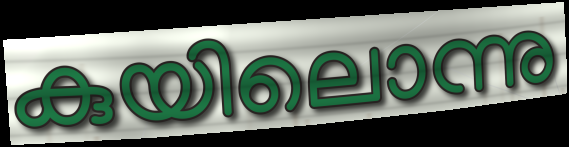
കുയിലൊന്നു